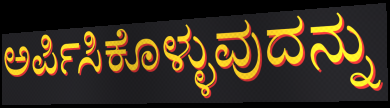
ಅರ್ಪಿಸಿಕೊಳ್ಳುವುದನ್ನು